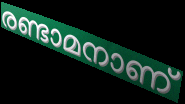
രണ്ടാമനാണ്